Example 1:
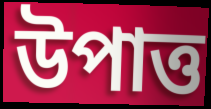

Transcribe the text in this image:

উপাত্ত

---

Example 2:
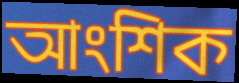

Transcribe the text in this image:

আংশিক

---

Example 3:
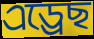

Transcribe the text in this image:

এড্ৰেছ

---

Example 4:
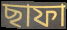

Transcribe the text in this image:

ছাফা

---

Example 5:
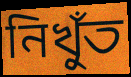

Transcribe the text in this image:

নিখুঁত